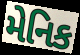
મેનિક